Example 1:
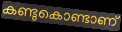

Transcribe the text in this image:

കണ്ടുകൊണ്ടാണ്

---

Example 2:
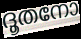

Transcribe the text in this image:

ദൂതനോ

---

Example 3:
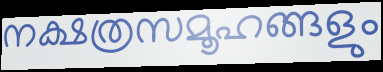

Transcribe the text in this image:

നക്ഷത്രസമൂഹങ്ങളും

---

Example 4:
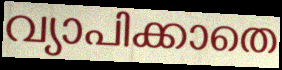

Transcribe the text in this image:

വ്യാപിക്കാതെ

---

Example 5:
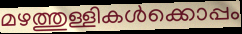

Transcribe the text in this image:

മഴത്തുള്ളികൾക്കൊപ്പം